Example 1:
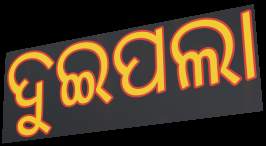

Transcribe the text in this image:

ଦୁଇପଲା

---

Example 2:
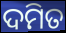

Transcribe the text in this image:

ଦମିତ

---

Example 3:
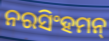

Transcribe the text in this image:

ନରସିଂହମନ୍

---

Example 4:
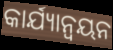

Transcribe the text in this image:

କାର୍ଯ୍ୟାନ୍ଵୟନ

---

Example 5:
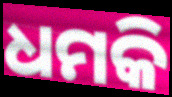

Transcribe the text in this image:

ଧମକି